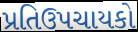
પ્રતિઉપચાયકો